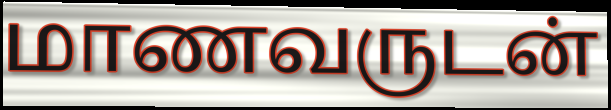
மாணவருடன்